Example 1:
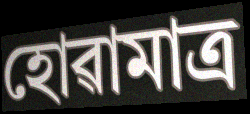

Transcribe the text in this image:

হোৱামাত্ৰ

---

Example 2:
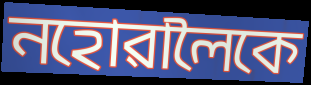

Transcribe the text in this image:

নহোৱালৈকে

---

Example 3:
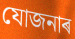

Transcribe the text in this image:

যোজনাৰ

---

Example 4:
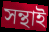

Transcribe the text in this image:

সন্থাই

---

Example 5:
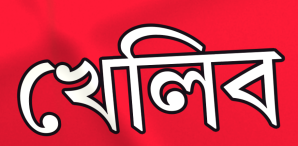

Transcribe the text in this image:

খেলিব